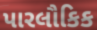
પારલૌકિક